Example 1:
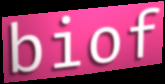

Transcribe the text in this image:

biof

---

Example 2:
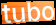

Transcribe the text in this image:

tubo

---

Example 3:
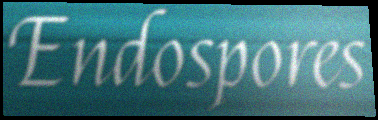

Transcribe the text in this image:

Endospores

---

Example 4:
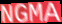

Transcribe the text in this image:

NGMA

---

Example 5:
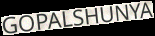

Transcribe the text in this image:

GOPALSHUNYA